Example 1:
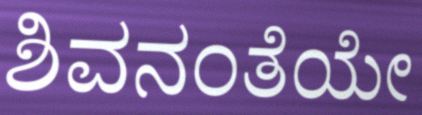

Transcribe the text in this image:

ಶಿವನಂತೆಯೇ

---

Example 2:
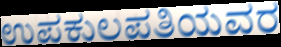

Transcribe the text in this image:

ಉಪಕುಲಪತಿಯವರ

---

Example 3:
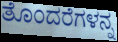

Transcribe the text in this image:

ತೊಂದರೆಗಳನ್ನ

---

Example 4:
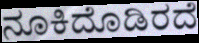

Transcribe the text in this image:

ನೂಕಿದೊಡಿರದೆ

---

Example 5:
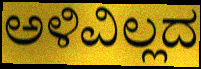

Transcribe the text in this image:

ಅಳಿವಿಲ್ಲದ